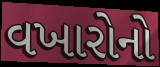
વખારોનો